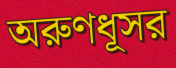
অরুণধূসর